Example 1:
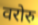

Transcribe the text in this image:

वरोरु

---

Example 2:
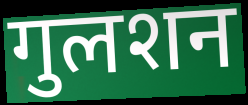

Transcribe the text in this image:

गुलशन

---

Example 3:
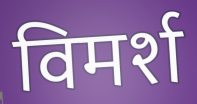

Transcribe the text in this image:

विमर्श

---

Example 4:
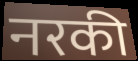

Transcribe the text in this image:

नरकी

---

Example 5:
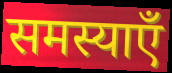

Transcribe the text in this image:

समस्याएँ